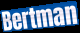
Bertman